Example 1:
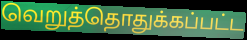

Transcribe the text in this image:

வெறுத்தொதுக்கப்பட்ட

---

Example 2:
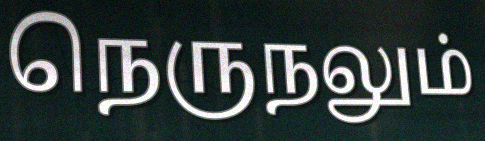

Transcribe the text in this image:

நெருநலும்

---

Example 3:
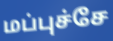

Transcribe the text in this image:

மப்புச்சே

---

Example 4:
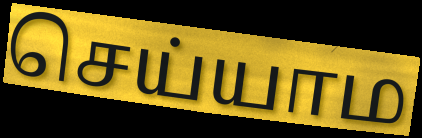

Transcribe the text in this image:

செய்யாம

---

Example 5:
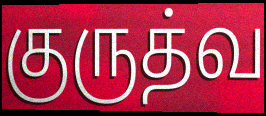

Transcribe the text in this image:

குருத்வ